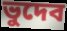
ভুদেব